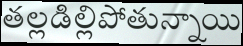
తల్లడిల్లిపోతున్నాయి